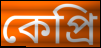
কেপ্রি